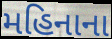
મહિનાના